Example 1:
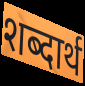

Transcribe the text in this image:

शब्दार्थ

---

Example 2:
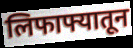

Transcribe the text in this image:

लिफाफ्यातून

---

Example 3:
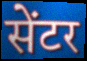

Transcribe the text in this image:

सेंटर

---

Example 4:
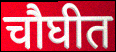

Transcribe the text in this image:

चौघीत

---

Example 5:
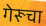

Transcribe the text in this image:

गेरूचा